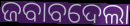
ଜବାବଦେଲା